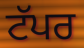
ਟੱਪਰ